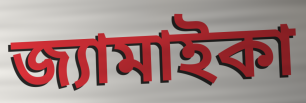
জ্যামাইকা